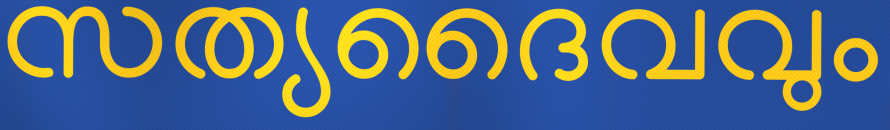
സത്യദൈവവും